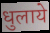
धुलाये